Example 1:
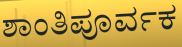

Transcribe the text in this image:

ಶಾಂತಿಪೂರ್ವಕ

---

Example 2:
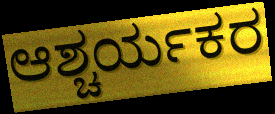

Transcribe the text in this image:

ಆಶ್ಚರ್ಯಕರ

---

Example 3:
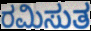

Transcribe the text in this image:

ರಮಿಸುತ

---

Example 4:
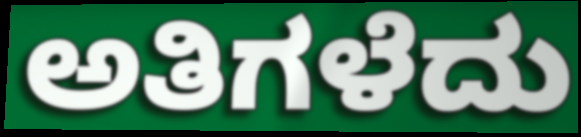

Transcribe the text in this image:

ಅತಿಗಳೆದು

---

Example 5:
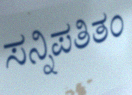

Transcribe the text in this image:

ಸನ್ನಿಪತಿತಂ